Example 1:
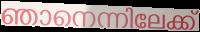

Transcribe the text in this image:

ഞാനെന്നിലേക്ക്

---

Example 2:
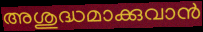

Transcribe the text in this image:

അശുദ്ധമാക്കുവാൻ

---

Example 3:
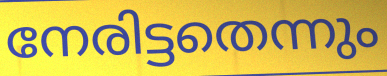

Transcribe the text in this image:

നേരിട്ടതെന്നും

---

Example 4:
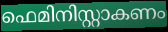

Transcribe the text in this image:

ഫെമിനിസ്റ്റാകണം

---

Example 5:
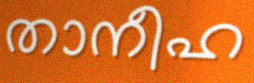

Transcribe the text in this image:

താനീഹ